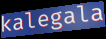
kalegala